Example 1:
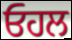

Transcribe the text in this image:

ਓਹਲ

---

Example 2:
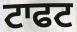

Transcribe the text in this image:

ਟਾਫਟ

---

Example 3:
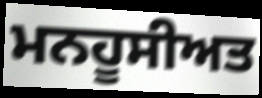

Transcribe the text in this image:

ਮਨਹੂਸੀਅਤ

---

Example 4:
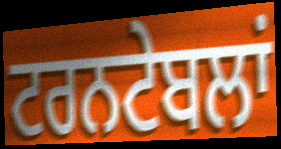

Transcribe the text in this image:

ਟਰਨਟੇਬਲਾਂ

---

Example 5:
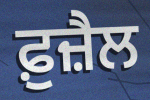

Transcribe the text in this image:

ਫ਼ੁਜ਼ੈਲ